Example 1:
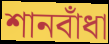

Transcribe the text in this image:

শানবাঁধা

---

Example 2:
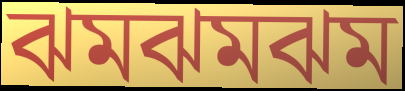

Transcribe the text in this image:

ঝমঝমঝম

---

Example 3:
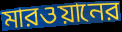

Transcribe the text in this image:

মারওয়ানের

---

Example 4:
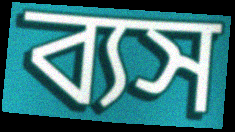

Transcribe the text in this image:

ব্যস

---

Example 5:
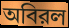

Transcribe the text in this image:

অবিরল